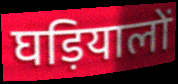
घड़ियालों